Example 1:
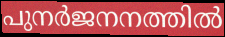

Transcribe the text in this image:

പുനർജനനത്തിൽ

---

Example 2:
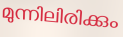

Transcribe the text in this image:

മുന്നിലിരിക്കും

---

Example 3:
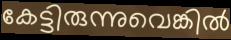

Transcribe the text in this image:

കേട്ടിരുന്നുവെങ്കിൽ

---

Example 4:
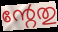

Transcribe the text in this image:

ന്റേതു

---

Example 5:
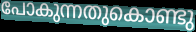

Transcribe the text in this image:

പോകുന്നതുകൊണ്ടു